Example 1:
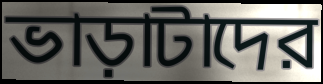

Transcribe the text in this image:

ভাড়াটাদের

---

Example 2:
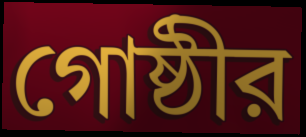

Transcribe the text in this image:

গোষ্ঠীর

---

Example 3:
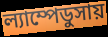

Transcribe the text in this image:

ল্যাম্পেডুসায়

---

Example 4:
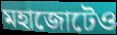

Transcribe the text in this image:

মহাজোটেও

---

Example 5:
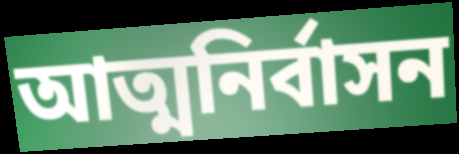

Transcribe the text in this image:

আত্মনির্বাসন